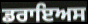
ਡਰਾਇਅਸ